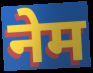
नेम